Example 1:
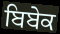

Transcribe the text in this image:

ਬਿਬੇਕ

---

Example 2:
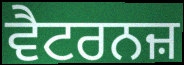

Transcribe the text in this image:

ਵੈਟਰਨਜ਼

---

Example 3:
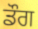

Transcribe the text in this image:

ਡੌਗ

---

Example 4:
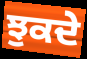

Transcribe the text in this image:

ਝੁਕਦੇ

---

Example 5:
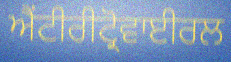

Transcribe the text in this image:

ਐਂਟੀਰੀਟ੍ਰੋਵਾਈਰਲ